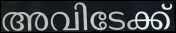
അവിടേക്ക്